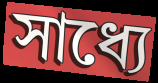
সাধ্যে